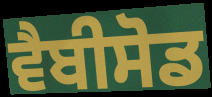
ਵੈਬੀਸੋਡ